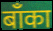
बाँका